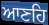
ਆਣਹਿ